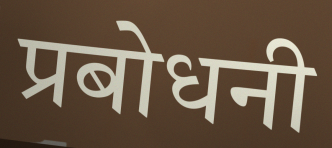
प्रबोधनी